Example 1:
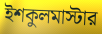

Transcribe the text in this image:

ইশকুলমাস্টার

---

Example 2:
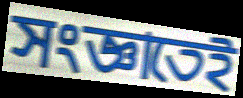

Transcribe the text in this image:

সংজ্ঞাতেই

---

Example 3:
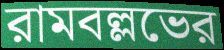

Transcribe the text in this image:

রামবল্লভের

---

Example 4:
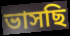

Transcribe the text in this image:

ভাসছি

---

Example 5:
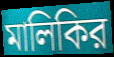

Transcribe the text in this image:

মালিকির